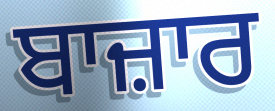
ਬਾਜ਼ਾਰ